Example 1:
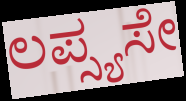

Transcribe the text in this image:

ಲಪ್ಸ್ಯಸೇ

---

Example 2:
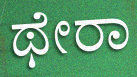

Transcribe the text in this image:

ಥೇರಾ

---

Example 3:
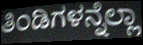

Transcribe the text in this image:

ತಿಂಡಿಗಳನ್ನೆಲ್ಲಾ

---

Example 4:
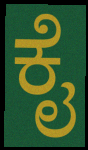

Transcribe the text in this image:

ಕೈ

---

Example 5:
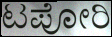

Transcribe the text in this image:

ಟಪೋರಿ